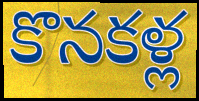
కొనకళ్ల